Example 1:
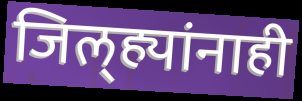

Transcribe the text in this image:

जिल्ह्यांनाही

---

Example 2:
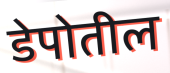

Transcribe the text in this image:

डेपोतील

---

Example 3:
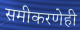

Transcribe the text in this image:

समीकरणेही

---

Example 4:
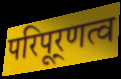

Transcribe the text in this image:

परिपूर्णत्व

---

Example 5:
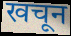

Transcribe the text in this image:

खचून